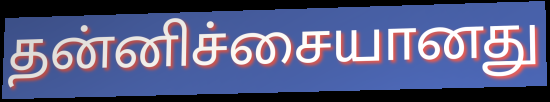
தன்னிச்சையானது